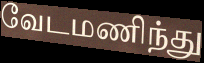
வேடமணிந்து